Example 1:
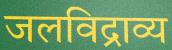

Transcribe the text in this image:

जलविद्राव्य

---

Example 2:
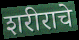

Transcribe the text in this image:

शरीराचे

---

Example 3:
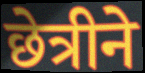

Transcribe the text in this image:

छेत्रीने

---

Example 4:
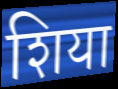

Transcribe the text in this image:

शिया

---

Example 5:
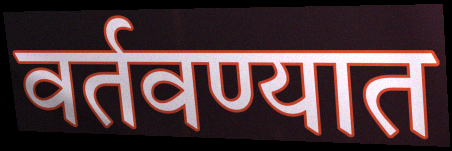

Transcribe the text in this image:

वर्तवण्यात